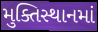
મુક્તિસ્થાનમાં